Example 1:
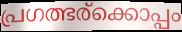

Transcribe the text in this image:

പ്രഗത്ഭര്ക്കൊപ്പം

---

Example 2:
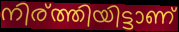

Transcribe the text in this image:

നിര്ത്തിയിട്ടാണ്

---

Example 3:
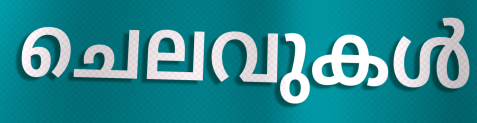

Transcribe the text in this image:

ചെലവുകൾ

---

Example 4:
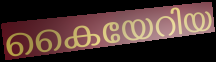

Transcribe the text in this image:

കൈയേറിയ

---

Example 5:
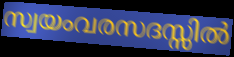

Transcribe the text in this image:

സ്വയംവരസദസ്സിൽ